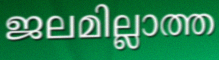
ജലമില്ലാത്ത